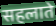
सहलाते